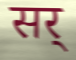
सर्